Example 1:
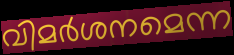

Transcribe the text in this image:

വിമർശനമെന്ന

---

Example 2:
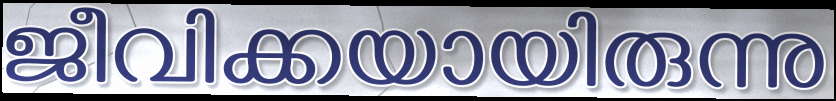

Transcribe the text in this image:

ജീവിക്കയായിരുന്നു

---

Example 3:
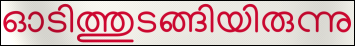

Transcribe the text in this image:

ഓടിത്തുടങ്ങിയിരുന്നു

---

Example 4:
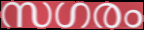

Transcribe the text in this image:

സഗരം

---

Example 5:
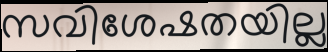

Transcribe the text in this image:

സവിശേഷതയില്ല